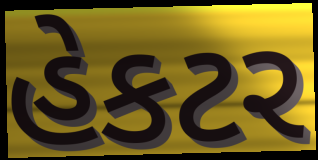
હેકટર